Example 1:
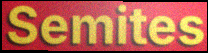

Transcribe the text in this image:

Semites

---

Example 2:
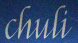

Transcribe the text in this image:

chuli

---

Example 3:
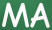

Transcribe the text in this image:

MA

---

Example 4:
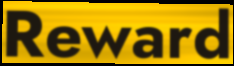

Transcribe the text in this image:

Reward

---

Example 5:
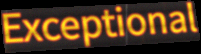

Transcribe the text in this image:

Exceptional